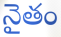
నైతం